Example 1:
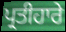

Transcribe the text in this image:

ਪ੍ਰਤੀਹਾਰੇ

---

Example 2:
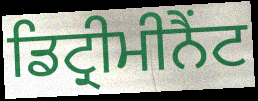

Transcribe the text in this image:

ਡਿਟ੍ਰੀਮੀਨੈਂਟ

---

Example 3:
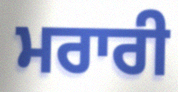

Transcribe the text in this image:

ਮਰਾਰੀ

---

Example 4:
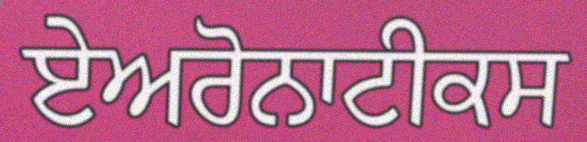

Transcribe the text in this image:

ਏਅਰੋਨਾਟੀਕਸ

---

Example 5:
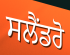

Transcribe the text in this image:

ਸਲੈਂਡਰੋ